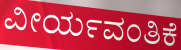
ವೀರ್ಯವಂತಿಕೆ